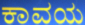
ಕಾವಯ